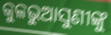
କୁଳଭୁଆସୁଣୀଙ୍କୁ